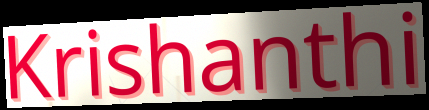
Krishanthi